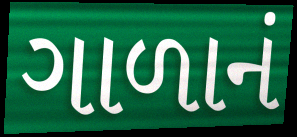
ગાળાનં